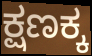
ಕ್ಷಣಕ್ಕ